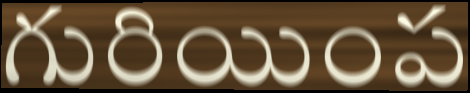
గురియింప